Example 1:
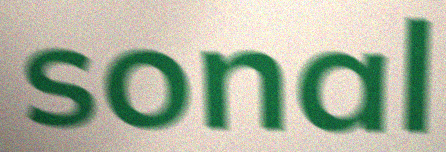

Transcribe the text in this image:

sonal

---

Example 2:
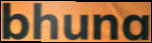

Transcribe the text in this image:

bhuna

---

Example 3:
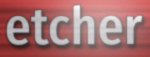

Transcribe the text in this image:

etcher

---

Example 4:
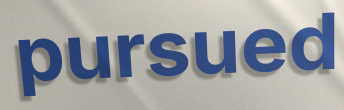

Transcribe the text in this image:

pursued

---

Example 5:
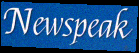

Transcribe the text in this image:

Newspeak